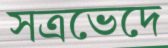
সত্ৰভেদে